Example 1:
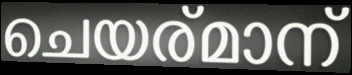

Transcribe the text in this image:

ചെയര്മാന്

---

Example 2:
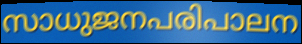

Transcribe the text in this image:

സാധുജനപരിപാലന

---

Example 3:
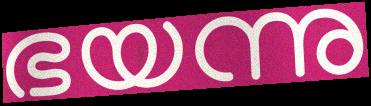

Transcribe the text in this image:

ഭയന്നു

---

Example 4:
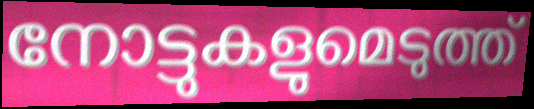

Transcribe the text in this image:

നോട്ടുകളുമെടുത്ത്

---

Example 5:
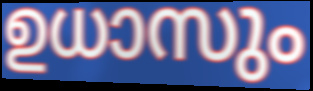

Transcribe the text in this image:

ഉധാസും